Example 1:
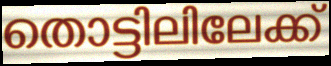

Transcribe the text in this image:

തൊട്ടിലിലേക്ക്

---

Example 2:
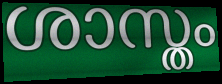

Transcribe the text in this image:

ശാസ്തം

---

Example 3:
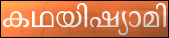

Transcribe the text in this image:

കഥയിഷ്യാമി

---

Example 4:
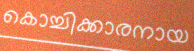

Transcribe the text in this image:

കൊച്ചിക്കാരനായ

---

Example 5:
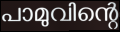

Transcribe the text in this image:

പാമുവിന്റെ